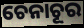
ଚେନାଚୂର